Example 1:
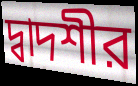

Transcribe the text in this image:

দ্বাদশীর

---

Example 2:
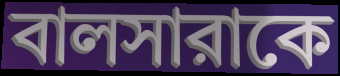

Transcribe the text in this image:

বালসারাকে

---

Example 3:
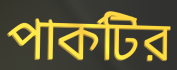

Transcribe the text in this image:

পার্কটির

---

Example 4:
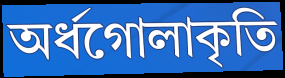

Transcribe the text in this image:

অর্ধগোলাকৃতি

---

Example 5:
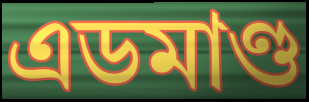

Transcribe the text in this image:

এডমাণ্ড